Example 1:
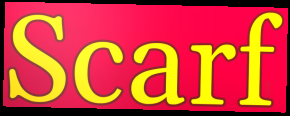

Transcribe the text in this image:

Scarf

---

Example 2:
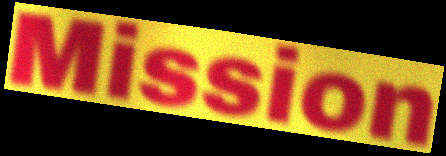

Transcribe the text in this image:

Mission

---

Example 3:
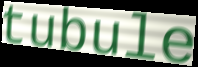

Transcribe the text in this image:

tubule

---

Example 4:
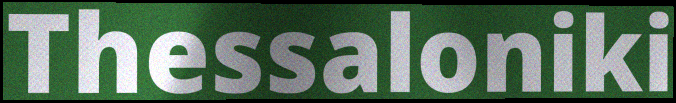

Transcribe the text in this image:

Thessaloniki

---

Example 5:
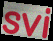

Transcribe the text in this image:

svi